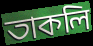
তাকলি